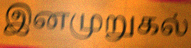
இனமுறுகல்